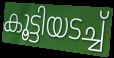
കൂട്ടിയടച്ച്